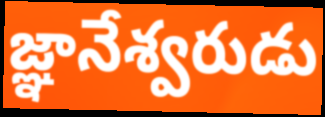
జ్ఞానేశ్వరుడు